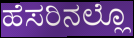
ಹೆಸರಿನಲ್ಲೊ